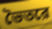
ভৈতরে